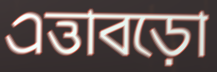
এত্তাবড়ো